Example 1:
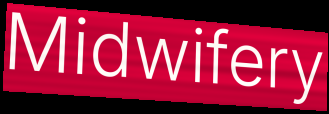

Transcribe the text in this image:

Midwifery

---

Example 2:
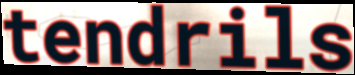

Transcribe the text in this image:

tendrils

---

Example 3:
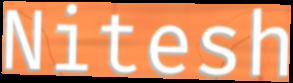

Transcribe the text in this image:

Nitesh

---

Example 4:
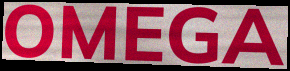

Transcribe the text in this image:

OMEGA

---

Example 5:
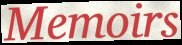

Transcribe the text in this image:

Memoirs